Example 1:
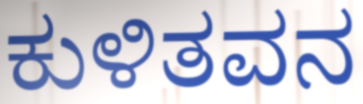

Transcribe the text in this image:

ಕುಳಿತವನ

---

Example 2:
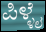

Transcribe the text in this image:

ಪಿಳ್ಳೈ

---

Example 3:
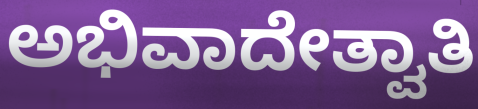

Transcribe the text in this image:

ಅಭಿವಾದೇತ್ವಾತಿ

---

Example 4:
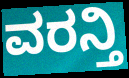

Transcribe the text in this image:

ವರನ್ತಿ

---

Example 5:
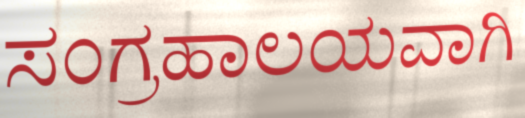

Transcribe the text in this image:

ಸಂಗ್ರಹಾಲಯವಾಗಿ